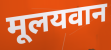
मूलयवान